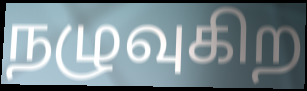
நழுவுகிற